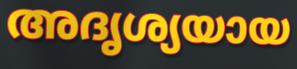
അദൃശ്യയായ